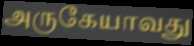
அருகேயாவது